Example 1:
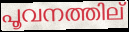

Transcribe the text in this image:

പൂവനത്തില്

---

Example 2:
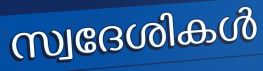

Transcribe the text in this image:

സ്വദേശികൾ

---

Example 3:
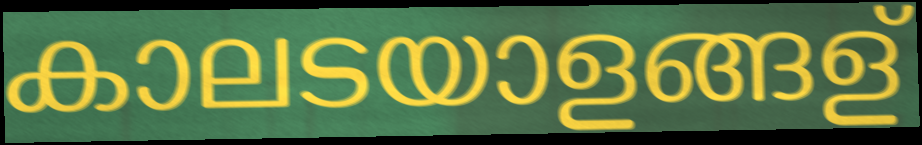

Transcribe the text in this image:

കാലടയാളങ്ങള്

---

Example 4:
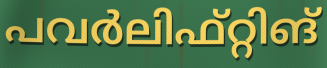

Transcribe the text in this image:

പവർലിഫ്റ്റിങ്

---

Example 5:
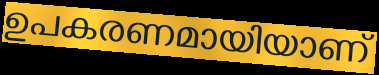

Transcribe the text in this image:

ഉപകരണമായിയാണ്